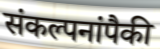
संकल्पनांपैकी